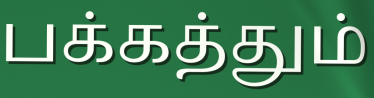
பக்கத்தும்